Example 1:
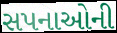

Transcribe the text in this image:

સપનાઓની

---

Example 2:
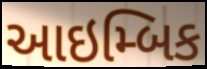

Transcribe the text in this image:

આઇમ્બિક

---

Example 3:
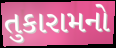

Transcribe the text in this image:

તુકારામનો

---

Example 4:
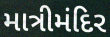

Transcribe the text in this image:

માત્રીમંદિર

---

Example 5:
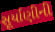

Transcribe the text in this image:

સૂર્યાણીની